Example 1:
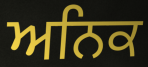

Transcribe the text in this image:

ਅਨਿਕ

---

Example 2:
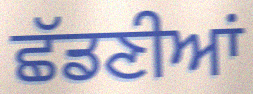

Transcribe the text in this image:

ਛੱਡਣੀਆਂ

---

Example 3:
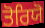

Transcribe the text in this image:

ਤੋਰਿਯੋ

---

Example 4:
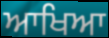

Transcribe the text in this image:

ਆਖਿਆ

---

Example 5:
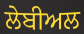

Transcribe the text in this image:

ਲੇਬੀਅਲ